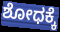
ಶೋಧಕ್ಕೆ